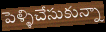
పెళ్ళిచేసుకున్నా